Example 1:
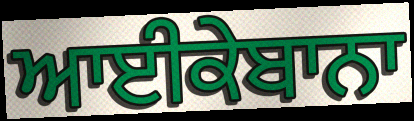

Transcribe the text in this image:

ਆਈਕੇਬਾਨਾ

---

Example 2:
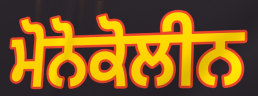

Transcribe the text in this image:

ਮੋਨੋਕੋਲੀਨ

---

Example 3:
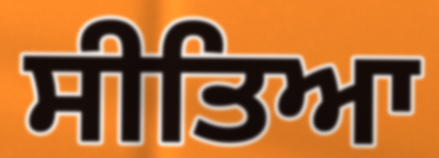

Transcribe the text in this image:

ਸੀਤਿਆ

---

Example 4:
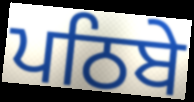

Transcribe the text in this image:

ਪਠਿਬੇ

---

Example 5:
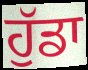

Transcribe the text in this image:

ਹੁੱਡਾ